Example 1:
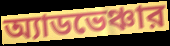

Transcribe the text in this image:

অ্যাডভেঞ্চার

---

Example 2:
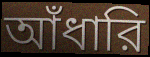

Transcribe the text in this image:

আঁধারি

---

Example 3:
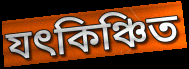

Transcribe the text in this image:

যৎকিঞ্চিত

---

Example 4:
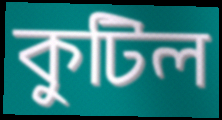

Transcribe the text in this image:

কুটিল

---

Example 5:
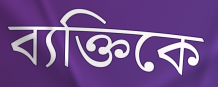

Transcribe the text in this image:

ব্যক্তিকে